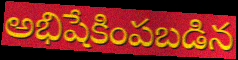
అభిషేకింపబడిన